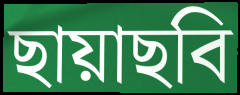
ছায়াছবি